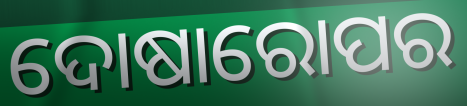
ଦୋଷାରୋପର